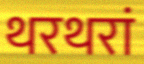
थरथरां